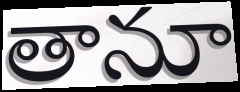
తానూ